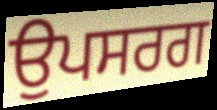
ਉਪਸਰਗ